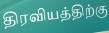
திரவியத்திற்கு